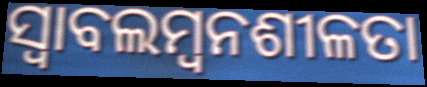
ସ୍ୱାବଲମ୍ୱନଶୀଳତା